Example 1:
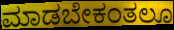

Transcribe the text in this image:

ಮಾಡಬೇಕಂತಲೂ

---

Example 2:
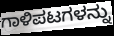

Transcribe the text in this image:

ಗಾಳಿಪಟಗಳನ್ನು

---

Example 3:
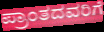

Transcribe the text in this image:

ಪ್ರಾಂತದವರಿಗೆ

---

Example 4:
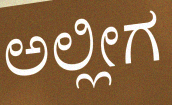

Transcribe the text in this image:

ಅಲ್ಲೀಗ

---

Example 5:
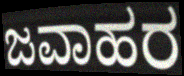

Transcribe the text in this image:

ಜವಾಹರ